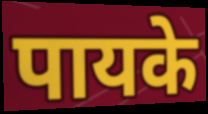
पायके